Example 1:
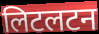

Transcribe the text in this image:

लिटलटन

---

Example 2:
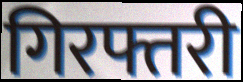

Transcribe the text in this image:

गिरफ्तरी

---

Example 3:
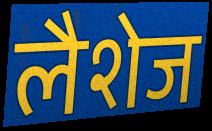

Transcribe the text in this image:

लैशेज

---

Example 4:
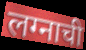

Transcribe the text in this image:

लग्नाची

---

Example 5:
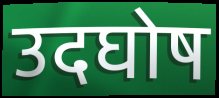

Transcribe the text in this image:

उदघोष